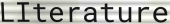
LIterature